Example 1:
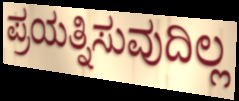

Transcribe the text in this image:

ಪ್ರಯತ್ನಿಸುವುದಿಲ್ಲ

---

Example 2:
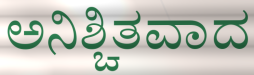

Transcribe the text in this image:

ಅನಿಶ್ಚಿತವಾದ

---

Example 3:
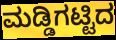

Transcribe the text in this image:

ಮಡ್ಡಿಗಟ್ಟಿದ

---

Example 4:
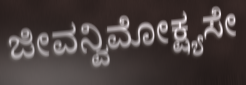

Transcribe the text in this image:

ಜೀವನ್ವಿಮೋಕ್ಷ್ಯಸೇ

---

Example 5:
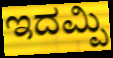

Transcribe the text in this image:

ಇದಮ್ಪಿ